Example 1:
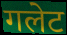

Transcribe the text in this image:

गलेट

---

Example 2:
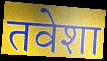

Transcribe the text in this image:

तवेशा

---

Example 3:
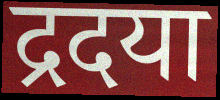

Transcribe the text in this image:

द्रदया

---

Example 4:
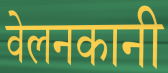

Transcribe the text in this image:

वेलनकानी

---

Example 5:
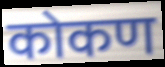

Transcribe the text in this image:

कोकण